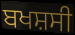
ਬਖਸ਼ਸੀ